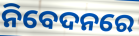
ନିବେଦନରେ